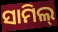
ସାମିଲ୍